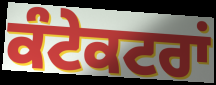
ਕੰਟੇਕਟਰਾਂ